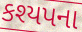
કશ્યપના